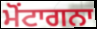
ਮੋਂਟਾਗਨਾ